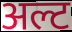
अल्ट